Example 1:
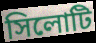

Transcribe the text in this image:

সিলোটি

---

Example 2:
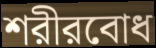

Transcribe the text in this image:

শরীরবোধ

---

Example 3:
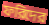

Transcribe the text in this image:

ফরিদের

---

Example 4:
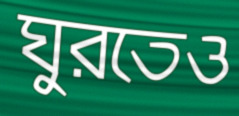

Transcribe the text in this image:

ঘুরতেও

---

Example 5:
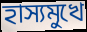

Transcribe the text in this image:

হাস্যমুখে